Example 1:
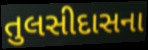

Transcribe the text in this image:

તુલસીદાસના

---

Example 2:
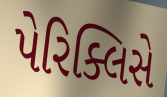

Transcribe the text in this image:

પેરિક્લિસે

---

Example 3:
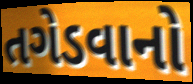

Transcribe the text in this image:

તગેડવાનો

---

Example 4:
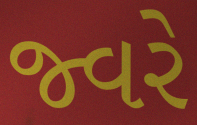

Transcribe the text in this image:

જ્વરે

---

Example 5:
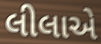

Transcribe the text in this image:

લીલાએ